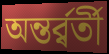
অন্তর্র্বর্তী